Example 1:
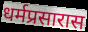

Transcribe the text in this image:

धर्मप्रसारास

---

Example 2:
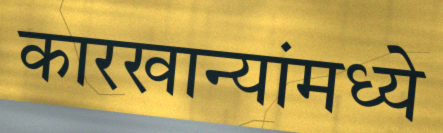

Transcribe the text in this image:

कारखान्यांमध्ये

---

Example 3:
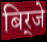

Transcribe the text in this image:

बिर्जे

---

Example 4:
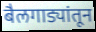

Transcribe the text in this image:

बैलगाड्यांतून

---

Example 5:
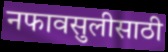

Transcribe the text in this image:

नफावसुलीसाठी